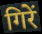
गिरें